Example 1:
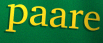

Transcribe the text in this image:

paare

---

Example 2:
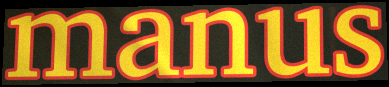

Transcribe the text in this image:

manus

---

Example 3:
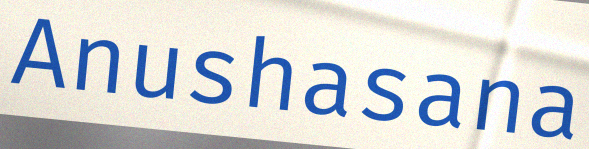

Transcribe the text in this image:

Anushasana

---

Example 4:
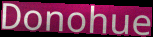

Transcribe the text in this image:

Donohue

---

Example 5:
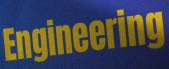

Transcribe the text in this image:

Engineering